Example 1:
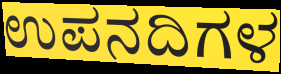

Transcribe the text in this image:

ಉಪನದಿಗಳ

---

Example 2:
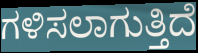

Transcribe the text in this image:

ಗಳಿಸಲಾಗುತ್ತಿದೆ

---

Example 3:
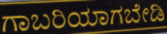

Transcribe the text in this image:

ಗಾಬರಿಯಾಗಬೇಡಿ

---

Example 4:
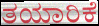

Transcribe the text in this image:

ತಯಾರಿಕೆ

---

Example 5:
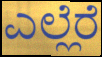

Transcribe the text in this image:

ಎಲ್ಲೆರೆ